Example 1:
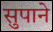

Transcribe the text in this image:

सुपाने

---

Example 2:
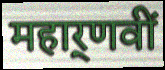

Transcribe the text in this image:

महार्णवीं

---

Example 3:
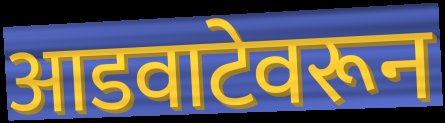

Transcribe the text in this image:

आडवाटेवरून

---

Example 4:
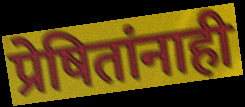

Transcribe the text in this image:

प्रेषितांनाही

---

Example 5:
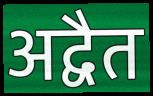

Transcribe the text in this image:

अद्वैत